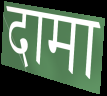
दामा